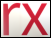
rx